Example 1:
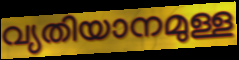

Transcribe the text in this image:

വ്യതിയാനമുള്ള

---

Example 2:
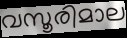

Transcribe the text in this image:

വസൂരിമാല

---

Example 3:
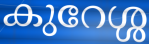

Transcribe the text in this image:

കുറേശ്ശ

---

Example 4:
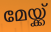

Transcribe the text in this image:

മേയ്ക്ക്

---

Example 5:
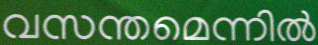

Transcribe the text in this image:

വസന്തമെന്നിൽ